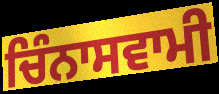
ਚਿੰਨਾਸਵਾਮੀ